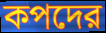
কপদের